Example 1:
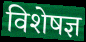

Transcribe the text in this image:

विशेषज्ञ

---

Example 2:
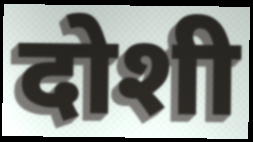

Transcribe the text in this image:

दोशी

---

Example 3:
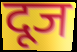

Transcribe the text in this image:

दूज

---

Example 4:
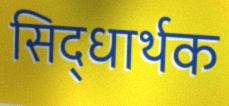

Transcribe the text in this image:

सिद्धार्थक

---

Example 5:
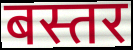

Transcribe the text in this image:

बस्तर